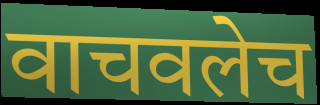
वाचवलेच